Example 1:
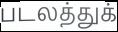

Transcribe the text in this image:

படலத்துக்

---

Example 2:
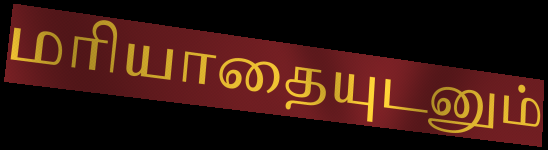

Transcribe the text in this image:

மரியாதையுடனும்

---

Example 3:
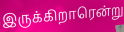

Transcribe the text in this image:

இருக்கிறாரென்று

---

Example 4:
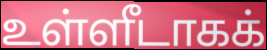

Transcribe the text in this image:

உள்ளீடாகக்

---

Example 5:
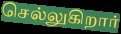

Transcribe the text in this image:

செல்லுகிறார்